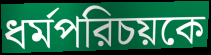
ধর্মপরিচয়কে